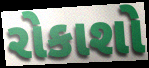
રોકાશો